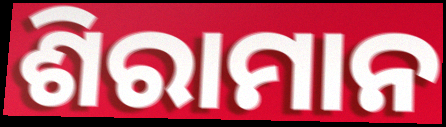
ଶିରାମାନ